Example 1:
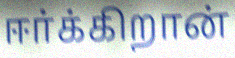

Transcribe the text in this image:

ஈர்க்கிறான்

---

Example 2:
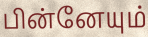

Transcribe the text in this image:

பின்னேயும்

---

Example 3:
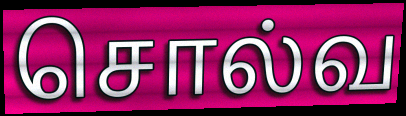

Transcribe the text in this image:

சொல்வ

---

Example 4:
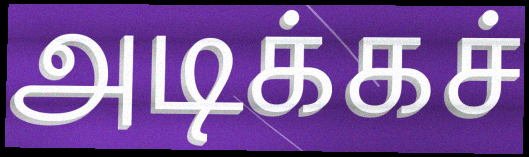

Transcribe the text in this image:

அடிக்கச்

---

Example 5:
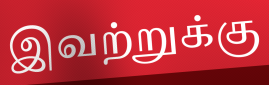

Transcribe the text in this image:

இவற்றுக்கு